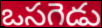
ఒసగెడు